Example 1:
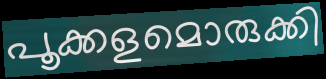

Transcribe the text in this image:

പൂക്കളമൊരുക്കി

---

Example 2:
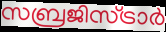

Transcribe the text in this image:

സബ്രജിസ്ട്രാർ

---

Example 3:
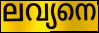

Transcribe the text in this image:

ലവ്യനെ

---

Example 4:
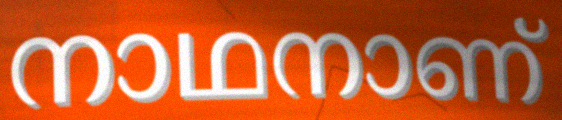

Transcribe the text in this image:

നാഥനാണ്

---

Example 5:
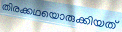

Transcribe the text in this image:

തിരക്കഥയൊരുക്കിയത്